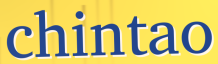
chintao